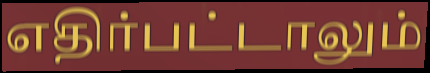
எதிர்பட்டாலும்